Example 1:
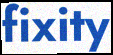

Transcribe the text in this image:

fixity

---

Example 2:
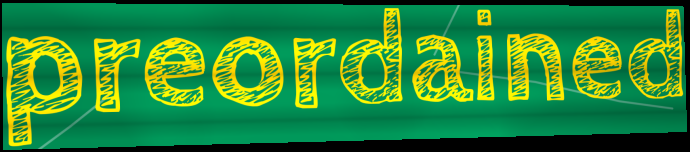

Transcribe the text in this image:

preordained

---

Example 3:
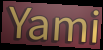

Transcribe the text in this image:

Yami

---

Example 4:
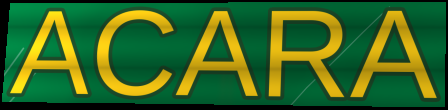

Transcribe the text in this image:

ACARA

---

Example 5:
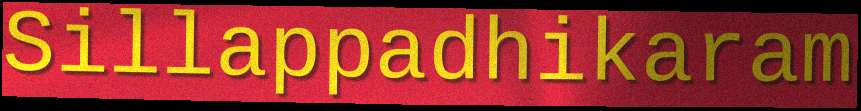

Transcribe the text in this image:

Sillappadhikaram